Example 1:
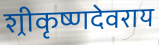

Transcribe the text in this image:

श्रीकृष्णदेवराय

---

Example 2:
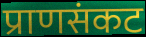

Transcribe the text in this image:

प्राणसंकट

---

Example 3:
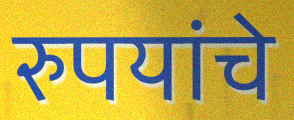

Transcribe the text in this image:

रुपयांचे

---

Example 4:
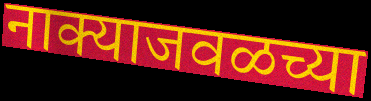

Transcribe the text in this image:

नाक्याजवळच्या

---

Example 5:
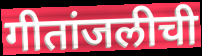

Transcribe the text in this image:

गीतांजलीची